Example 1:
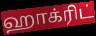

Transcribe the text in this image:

ஹாக்ரிட்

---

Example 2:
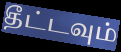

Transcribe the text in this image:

தீட்டவும்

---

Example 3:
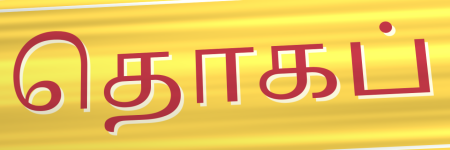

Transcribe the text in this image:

தொகப்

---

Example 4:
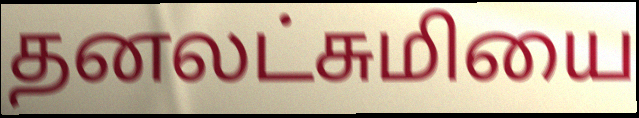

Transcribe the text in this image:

தனலட்சுமியை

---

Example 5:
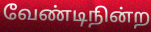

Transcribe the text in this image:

வேண்டிநின்ற